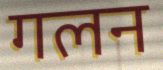
गलन